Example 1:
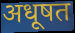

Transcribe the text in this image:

अधूषत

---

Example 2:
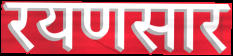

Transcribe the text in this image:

रयणसार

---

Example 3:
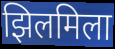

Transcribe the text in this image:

झिलमिला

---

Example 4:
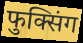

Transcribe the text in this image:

फुक्सिंग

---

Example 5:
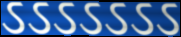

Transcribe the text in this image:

ऽऽऽऽऽऽऽ